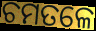
ଚମତଳେ